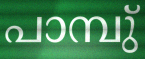
പാമ്പു്